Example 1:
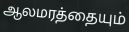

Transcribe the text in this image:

ஆலமரத்தையும்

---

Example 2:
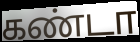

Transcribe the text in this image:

கண்டா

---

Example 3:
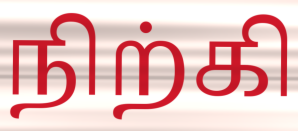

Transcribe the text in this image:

நிற்கி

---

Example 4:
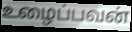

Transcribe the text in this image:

உழைப்பவன்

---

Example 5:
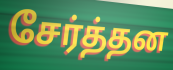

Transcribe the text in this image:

சேர்த்தன